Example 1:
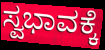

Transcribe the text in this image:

ಸ್ವಭಾವಕ್ಕೆ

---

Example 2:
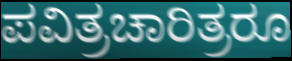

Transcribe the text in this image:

ಪವಿತ್ರಚಾರಿತ್ರರೂ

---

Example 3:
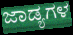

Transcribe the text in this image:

ಜಾಡ್ಯಗಳ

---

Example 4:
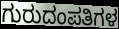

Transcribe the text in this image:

ಗುರುದಂಪತಿಗಳ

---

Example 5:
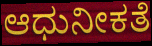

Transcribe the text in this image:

ಆಧುನೀಕತೆ